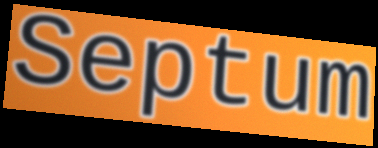
Septum